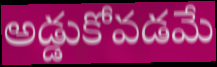
అడ్డుకోవడమే